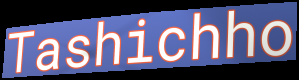
Tashichho